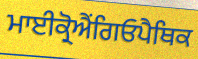
ਮਾਈਕ੍ਰੋਐਂਗਿਓਪੈਥਿਕ